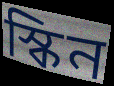
স্কিন